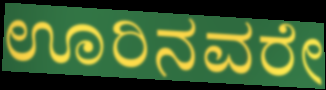
ಊರಿನವರೇ